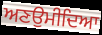
ਅਣਉਮੀਦਿਆ